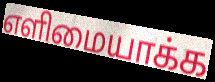
எளிமையாக்க